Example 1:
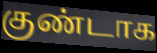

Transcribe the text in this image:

குண்டாக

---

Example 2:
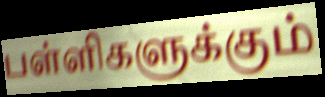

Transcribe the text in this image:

பள்ளிகளுக்கும்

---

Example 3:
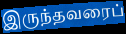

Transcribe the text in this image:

இருந்தவரைப்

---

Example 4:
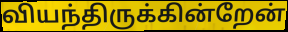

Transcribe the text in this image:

வியந்திருக்கின்றேன்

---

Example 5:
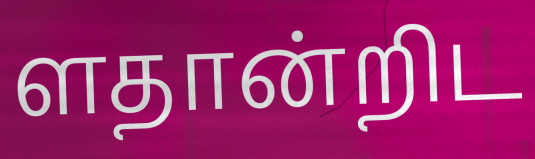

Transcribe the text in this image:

ளதான்றிட